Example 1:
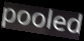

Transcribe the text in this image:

pooled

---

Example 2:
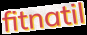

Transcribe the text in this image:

fitnatil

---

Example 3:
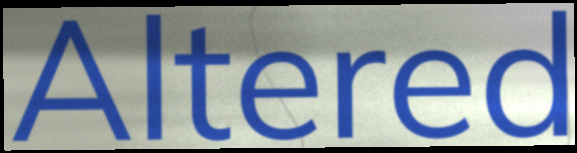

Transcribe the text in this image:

Altered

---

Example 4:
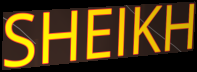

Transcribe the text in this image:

SHEIKH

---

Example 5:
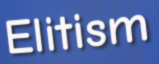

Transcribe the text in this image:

Elitism